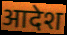
आदेश